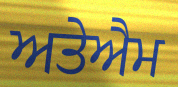
ਅਤੇਐਮ